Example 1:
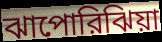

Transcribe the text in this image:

ঝাপোরিঝিয়া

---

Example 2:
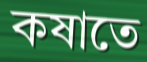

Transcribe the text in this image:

কষাতে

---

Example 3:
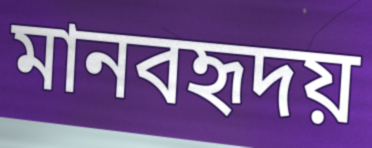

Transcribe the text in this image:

মানবহৃদয়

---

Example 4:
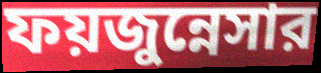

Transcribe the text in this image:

ফয়জুন্নেসার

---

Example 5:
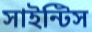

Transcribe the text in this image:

সাইন্টিস